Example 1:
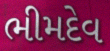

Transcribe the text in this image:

ભીમદેવ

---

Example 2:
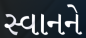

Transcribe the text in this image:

સ્વાનને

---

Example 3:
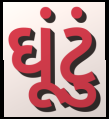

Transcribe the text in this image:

ઘૂંટું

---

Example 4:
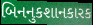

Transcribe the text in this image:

બિનનુકશાનકારક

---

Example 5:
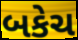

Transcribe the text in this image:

બકેચ